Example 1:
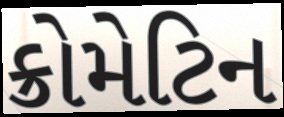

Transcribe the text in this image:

ક્રોમેટિન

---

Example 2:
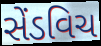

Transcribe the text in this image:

સેંડવિચ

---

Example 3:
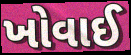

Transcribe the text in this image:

ખોવાઈ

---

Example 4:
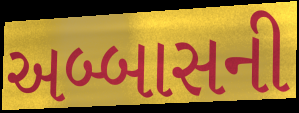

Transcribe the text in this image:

અબ્બાસની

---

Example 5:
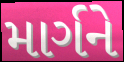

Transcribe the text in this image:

માર્ગને